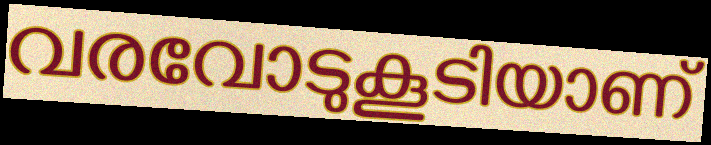
വരവോടുകൂടിയാണ്